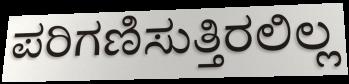
ಪರಿಗಣಿಸುತ್ತಿರಲಿಲ್ಲ